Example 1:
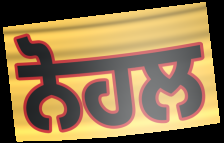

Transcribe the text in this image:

ਨੋਹਲ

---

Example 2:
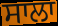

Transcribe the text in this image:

ਸਾਲਾ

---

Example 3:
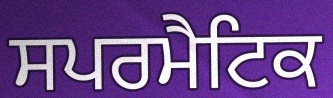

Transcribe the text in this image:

ਸਪਰਮੈਟਿਕ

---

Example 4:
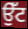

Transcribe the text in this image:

ਉੱਟ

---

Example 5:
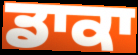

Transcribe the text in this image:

ਡਾਕਾ